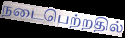
நடைபெற்றதில்